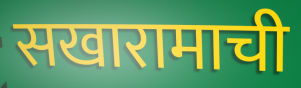
सखारामाची